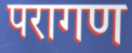
परागण